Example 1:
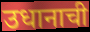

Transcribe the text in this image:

उधानाची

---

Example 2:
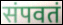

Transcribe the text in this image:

संपवतं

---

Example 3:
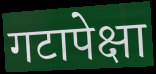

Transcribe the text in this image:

गटापेक्षा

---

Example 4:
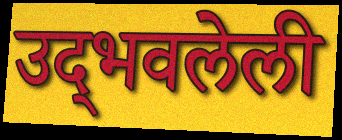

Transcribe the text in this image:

उद्‌भवलेली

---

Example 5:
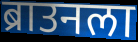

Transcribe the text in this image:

ब्राउनला